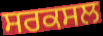
ਸਰਕਸਲ